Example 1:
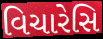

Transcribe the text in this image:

વિચારેસિ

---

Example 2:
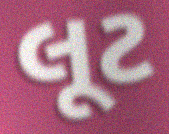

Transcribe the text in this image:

લૂટ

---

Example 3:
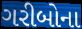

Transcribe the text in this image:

ગરીબોના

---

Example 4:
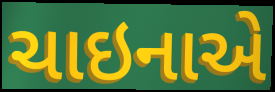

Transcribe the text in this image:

ચાઇનાએ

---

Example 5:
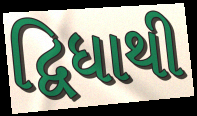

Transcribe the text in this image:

દ્વિધાથી